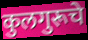
कुलगुरूचे